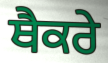
ਥੈਕਰੇ